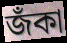
জঁকা